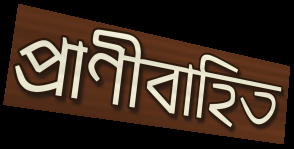
প্রাণীবাহিত